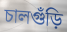
চালগুঁড়ি